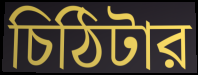
চিঠিটার